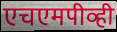
एचएमपीव्ही